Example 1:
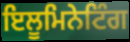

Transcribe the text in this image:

ਇਲੂਮਿਨੇਟਿੰਗ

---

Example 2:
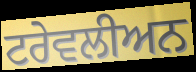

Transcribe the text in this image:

ਟਰੇਵਲੀਅਨ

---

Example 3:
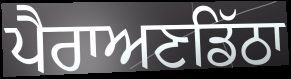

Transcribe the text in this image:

ਪੈਰਾਅਣਡਿੱਠਾ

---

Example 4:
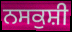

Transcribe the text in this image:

ਨਸਕੁਸ਼ੀ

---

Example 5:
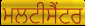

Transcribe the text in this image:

ਮਲਟੀਸੈਂਟਰ